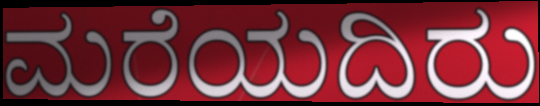
ಮರೆಯದಿರು